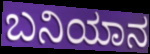
ಬನಿಯಾನ